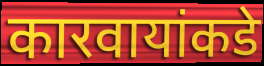
कारवायांकडे